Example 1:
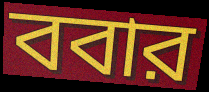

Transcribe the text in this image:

ববার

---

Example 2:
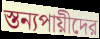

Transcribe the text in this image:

স্তন্যপায়ীদের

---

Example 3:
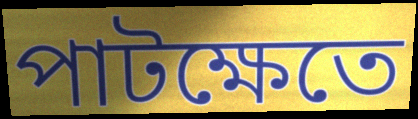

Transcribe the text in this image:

পাটক্ষেতে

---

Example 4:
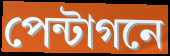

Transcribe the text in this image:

পেন্টাগনে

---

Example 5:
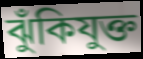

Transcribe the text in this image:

ঝুঁকিযুক্ত